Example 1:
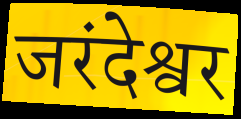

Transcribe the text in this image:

जरंदेश्वर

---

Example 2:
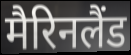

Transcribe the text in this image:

मैरिनलैंड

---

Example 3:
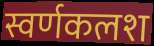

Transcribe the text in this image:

स्वर्णकलश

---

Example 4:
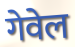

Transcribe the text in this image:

गेवेल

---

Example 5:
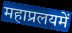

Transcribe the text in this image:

महाप्रलयमें